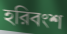
হরিবংশ